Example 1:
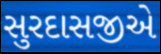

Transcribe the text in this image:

સુરદાસજીએ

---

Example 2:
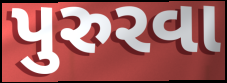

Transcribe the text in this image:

પુરુરવા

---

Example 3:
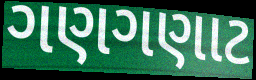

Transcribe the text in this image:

ગણગણાટ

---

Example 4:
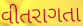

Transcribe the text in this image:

વીતરાગતા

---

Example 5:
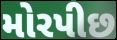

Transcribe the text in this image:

મોરપીછ